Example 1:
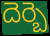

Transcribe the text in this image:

దెర్బె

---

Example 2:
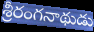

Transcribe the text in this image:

శ్రీరంగనాథుడు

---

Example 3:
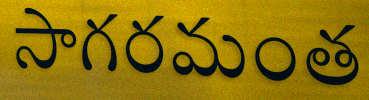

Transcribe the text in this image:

సాగరమంత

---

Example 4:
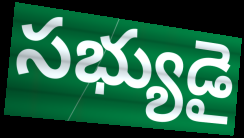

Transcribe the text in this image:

సభ్యుడై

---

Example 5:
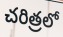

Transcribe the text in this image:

చరిత్రలో